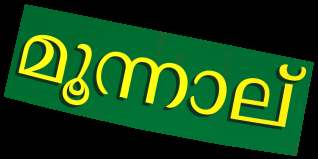
മൂന്നാല്